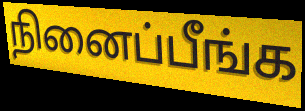
நினைப்பீங்க